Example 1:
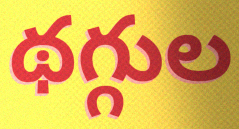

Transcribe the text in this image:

థగ్గుల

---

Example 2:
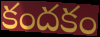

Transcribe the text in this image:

కందకం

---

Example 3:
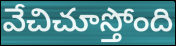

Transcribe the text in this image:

వేచిచూస్తోంది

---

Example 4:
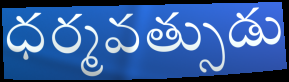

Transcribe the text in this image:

ధర్మవత్సుడు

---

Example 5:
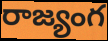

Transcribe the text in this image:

రాజ్యంగ